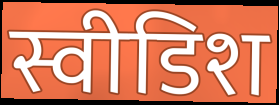
स्वीडिश